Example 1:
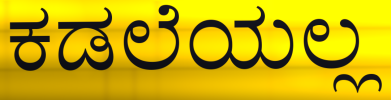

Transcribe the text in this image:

ಕಡಲೆಯಲ್ಲ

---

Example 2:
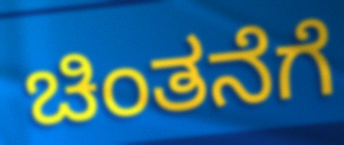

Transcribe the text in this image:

ಚಿಂತನೆಗೆ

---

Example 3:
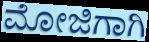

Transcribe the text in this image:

ಮೋಜಿಗಾಗಿ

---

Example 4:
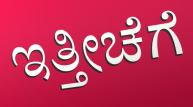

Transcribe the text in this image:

ಇತ್ತೀಚೆಗೆ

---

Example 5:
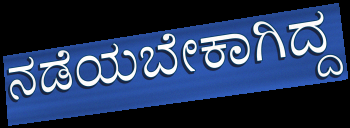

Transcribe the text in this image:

ನಡೆಯಬೇಕಾಗಿದ್ದ